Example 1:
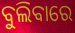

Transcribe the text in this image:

ବୁଲିବାରେ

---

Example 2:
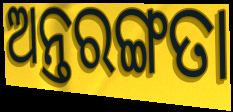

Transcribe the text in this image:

ଅନ୍ତରଙ୍ଗତା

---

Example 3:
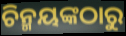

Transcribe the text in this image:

ଚିନ୍ମୟଙ୍କଠାରୁ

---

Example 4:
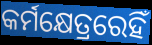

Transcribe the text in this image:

କର୍ମକ୍ଷେତ୍ରରେହିଁ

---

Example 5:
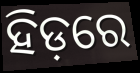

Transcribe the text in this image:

ହିଡ଼ରେ